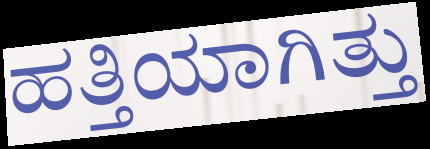
ಹತ್ತಿಯಾಗಿತ್ತು